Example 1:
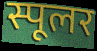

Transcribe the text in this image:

स्पूलर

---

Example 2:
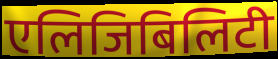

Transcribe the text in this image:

एलिजिबिलिटी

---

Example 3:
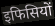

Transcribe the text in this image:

इफिसियों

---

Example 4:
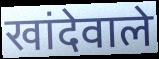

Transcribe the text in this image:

खांदेवाले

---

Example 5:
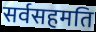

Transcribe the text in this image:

सर्वसहमति